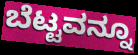
ಬೆಟ್ಟವನ್ನೂ